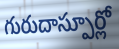
గురుదాస్పూర్లో